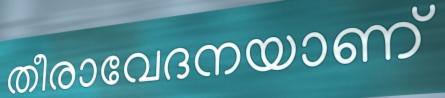
തീരാവേദനയാണ്